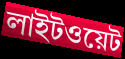
লাইটওয়েট